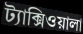
ট্যাক্সিওয়ালা